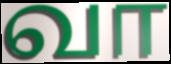
வா